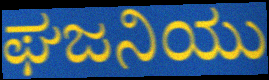
ಘಜನಿಯು